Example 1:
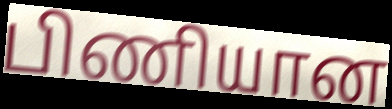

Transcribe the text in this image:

பிணியான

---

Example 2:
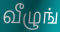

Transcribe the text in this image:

வீழுங்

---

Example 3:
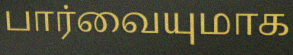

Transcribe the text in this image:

பார்வையுமாக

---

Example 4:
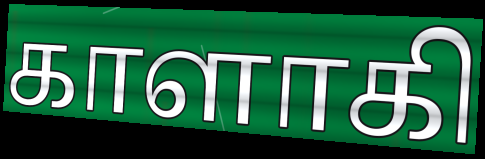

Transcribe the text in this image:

காளாகி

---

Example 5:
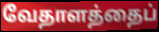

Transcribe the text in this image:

வேதாளத்தைப்